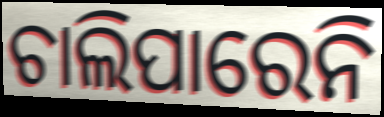
ଚାଲିପାରେନି